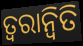
ତ୍ଵରାନ୍ଵିତି